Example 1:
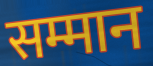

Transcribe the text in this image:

सम्मान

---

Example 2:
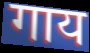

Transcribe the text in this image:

गाय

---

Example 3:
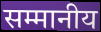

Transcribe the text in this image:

सम्मानीय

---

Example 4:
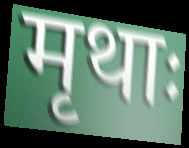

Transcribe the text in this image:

मृथाः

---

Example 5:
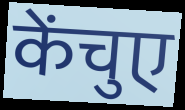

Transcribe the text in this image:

केंचुए